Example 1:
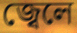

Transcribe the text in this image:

জ্বেলে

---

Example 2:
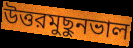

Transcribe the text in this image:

উত্তরমুছুনভাল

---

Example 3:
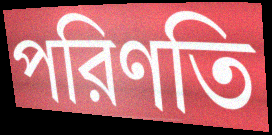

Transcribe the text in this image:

পরিণতি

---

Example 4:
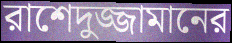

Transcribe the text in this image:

রাশেদুজ্জামানের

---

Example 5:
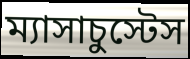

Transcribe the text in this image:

ম্যাসাচুস্টেস